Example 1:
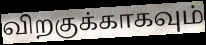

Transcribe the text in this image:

விறகுக்காகவும்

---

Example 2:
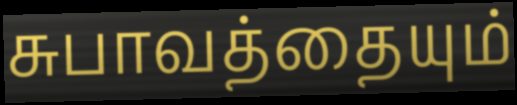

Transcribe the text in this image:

சுபாவத்தையும்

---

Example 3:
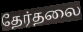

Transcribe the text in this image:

தேர்தலை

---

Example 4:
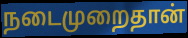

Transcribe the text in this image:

நடைமுறைதான்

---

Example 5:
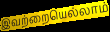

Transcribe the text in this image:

இவற்றையெல்லாம்